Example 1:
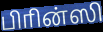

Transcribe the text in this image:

பிரின்ஸி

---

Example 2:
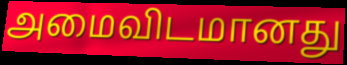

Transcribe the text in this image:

அமைவிடமானது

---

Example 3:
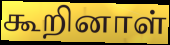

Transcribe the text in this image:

கூறினாள்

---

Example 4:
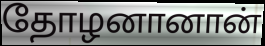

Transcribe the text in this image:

தோழனானான்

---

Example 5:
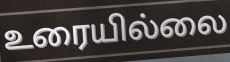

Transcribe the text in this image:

உரையில்லை